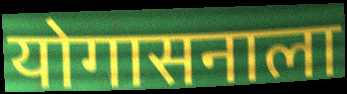
योगासनाला